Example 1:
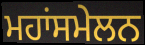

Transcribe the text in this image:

ਮਹਾਂਸਮੇਲਨ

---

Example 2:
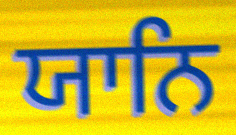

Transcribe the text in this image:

ਯਾਨਿ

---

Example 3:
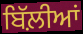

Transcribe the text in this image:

ਬਿੱਲ਼ੀਆਂ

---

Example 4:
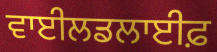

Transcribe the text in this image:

ਵਾਈਲਡਲਾਈਫ਼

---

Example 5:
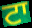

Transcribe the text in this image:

ਟਾ